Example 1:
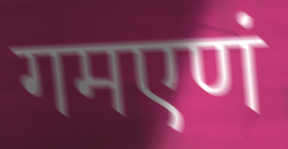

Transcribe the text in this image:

गमएणं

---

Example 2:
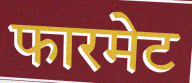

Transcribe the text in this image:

फारमेट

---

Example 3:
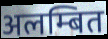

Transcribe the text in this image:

अलम्बित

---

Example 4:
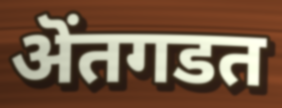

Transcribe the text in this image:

ऄंतगडत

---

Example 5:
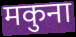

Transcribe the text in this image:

मकुना